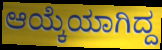
ಆಯ್ಕೆಯಾಗಿದ್ದ